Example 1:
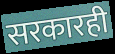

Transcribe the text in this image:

सरकारही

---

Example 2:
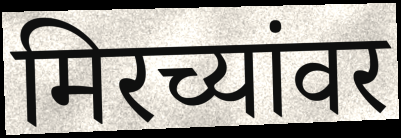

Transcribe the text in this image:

मिरच्यांवर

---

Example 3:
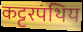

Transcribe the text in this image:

कट्टरपंथिय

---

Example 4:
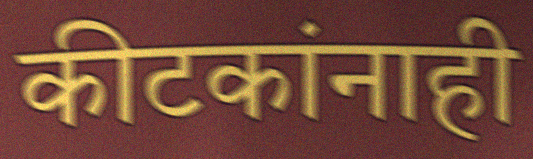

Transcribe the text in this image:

कीटकांनाही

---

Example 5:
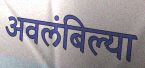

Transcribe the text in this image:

अवलंबिल्या